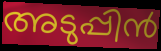
അടുപ്പിൻ